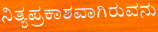
ನಿತ್ಯಪ್ರಕಾಶವಾಗಿರುವನು